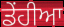
ਡੇਂਹੀਆ